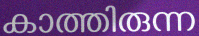
കാത്തിരുന്ന